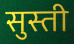
सुस्‍ती